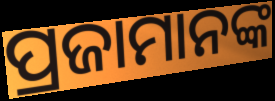
ପ୍ରଜାମାନଙ୍କ